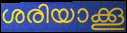
ശരിയാക്കൂ